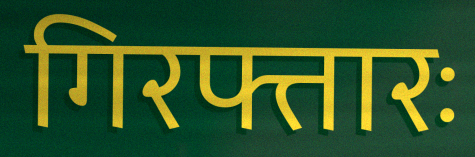
गिरफ्तारः